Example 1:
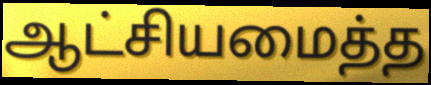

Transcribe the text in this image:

ஆட்சியமைத்த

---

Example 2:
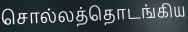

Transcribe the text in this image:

சொல்லத்தொடங்கிய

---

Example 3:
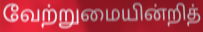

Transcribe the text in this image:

வேற்றுமையின்றித்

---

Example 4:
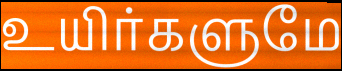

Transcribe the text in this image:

உயிர்களுமே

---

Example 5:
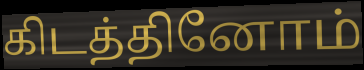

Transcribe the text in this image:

கிடத்தினோம்